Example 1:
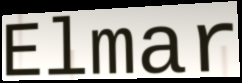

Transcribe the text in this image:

Elmar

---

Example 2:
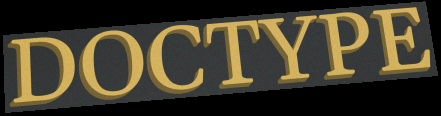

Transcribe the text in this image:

DOCTYPE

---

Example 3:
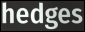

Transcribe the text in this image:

hedges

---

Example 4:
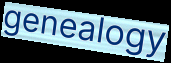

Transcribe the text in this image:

genealogy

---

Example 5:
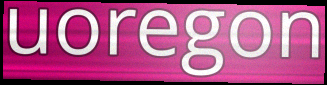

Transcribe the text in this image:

uoregon